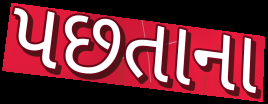
પછતાના